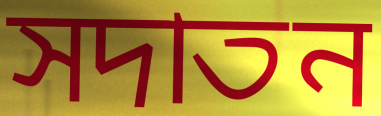
সদাতন